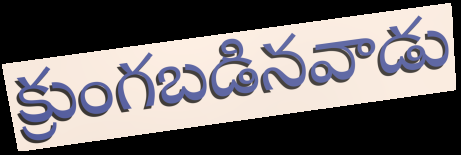
క్రుంగబడినవాడు